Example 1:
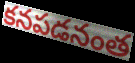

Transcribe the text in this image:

కనపడనంత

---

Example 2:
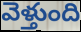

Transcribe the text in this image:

వెళ్తుంది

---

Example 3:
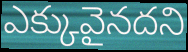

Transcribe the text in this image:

ఎక్కువైనదని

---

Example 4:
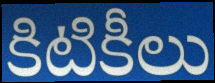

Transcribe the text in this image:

కిటికీలు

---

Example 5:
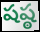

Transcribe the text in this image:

షష్ఠ